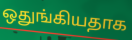
ஒதுங்கியதாக